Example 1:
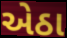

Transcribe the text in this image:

એઠા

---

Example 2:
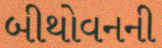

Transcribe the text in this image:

બીથોવનની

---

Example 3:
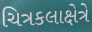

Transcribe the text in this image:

ચિત્રકલાક્ષેત્રે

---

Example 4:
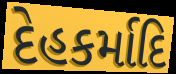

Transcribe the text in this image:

દેહકર્માદિ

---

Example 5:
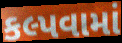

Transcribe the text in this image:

કલ્પવામાં